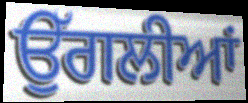
ਉੱਗਲੀਆਂ